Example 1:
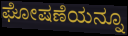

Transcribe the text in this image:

ಘೋಷಣೆಯನ್ನೂ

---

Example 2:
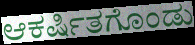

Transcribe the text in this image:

ಆಕರ್ಷಿತಗೊಂಡು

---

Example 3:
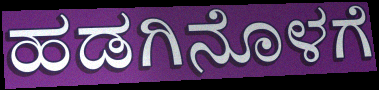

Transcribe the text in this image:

ಹಡಗಿನೊಳಗೆ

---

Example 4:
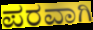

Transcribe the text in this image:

ಪರವಾಗಿ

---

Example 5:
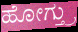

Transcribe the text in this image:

ಹೋಗ್ತ್ರು